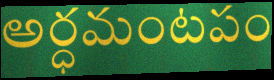
అర్ధమంటపం